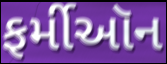
ફર્મીઑન